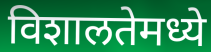
विशालतेमध्ये